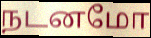
நடனமோ